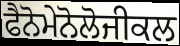
ਫੈਨੋਮੇਨੋਲੋਜੀਕਲ